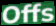
Offs